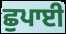
ਛੁਪਾਈ